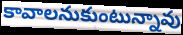
కావాలనుకుంటున్నావు